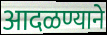
आदळण्याने